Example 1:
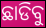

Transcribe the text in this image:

ଛାଡିବୁ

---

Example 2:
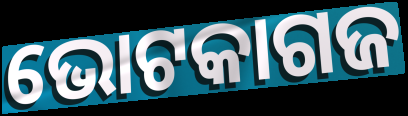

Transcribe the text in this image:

ଭୋଟକାଗଜ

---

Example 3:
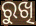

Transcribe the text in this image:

ରୁଖି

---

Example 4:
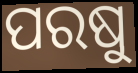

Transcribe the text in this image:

ପରଷୁ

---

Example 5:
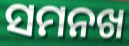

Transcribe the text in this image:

ସମନଖ